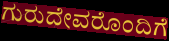
ಗುರುದೇವರೊಂದಿಗೆ